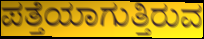
ಪತ್ತೆಯಾಗುತ್ತಿರುವ